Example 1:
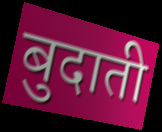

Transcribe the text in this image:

बुदाती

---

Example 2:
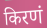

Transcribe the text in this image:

किरणं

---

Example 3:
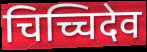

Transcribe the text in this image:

चिच्चिदेव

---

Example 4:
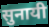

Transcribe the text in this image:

सुनायी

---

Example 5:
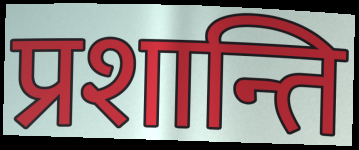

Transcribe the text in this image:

प्रशान्ति